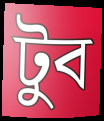
টুব